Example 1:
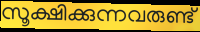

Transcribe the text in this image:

സൂക്ഷിക്കുന്നവരുണ്ട്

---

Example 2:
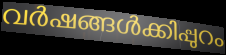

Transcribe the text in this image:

വർഷങ്ങൾക്കിപ്പുറം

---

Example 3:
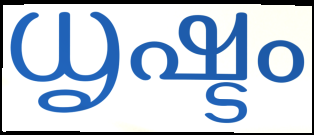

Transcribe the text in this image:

ധൃഷ്ടം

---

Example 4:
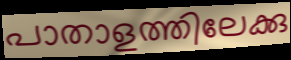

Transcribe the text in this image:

പാതാളത്തിലേക്കു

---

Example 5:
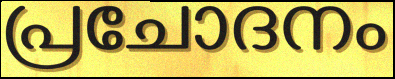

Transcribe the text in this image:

പ്രചോദനം